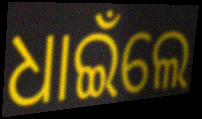
ଧାଇଁଲେ